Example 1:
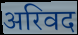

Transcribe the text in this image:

अरिवद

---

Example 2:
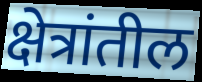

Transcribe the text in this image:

क्षेत्रांतील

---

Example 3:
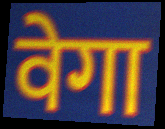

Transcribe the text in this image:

वेगा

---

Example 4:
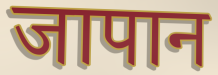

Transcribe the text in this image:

जापान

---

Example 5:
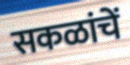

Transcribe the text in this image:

सकळांचें